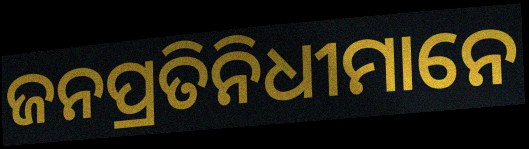
ଜନପ୍ରତିନିଧୀମାନେ